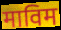
माविम